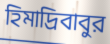
হিমাদ্রিবাবুর